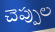
చెప్పుల